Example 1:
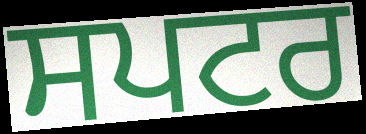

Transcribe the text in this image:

ਸਪਟਰ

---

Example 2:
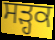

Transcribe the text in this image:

ਸੜ੍ਹਕ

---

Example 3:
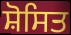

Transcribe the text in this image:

ਸ਼ੋਸਿਤ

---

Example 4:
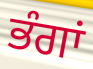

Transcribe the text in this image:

ਭੰਗਾਂ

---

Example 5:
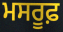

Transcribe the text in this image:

ਮਸਰੂਫ਼